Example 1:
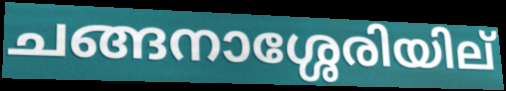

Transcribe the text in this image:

ചങ്ങനാശ്ശേരിയില്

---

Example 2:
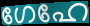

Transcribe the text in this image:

ഗേഹേ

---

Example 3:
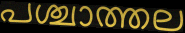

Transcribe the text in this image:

പശ്ചാത്തല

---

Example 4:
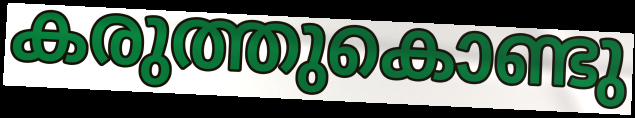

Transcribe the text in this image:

കരുത്തുകൊണ്ടു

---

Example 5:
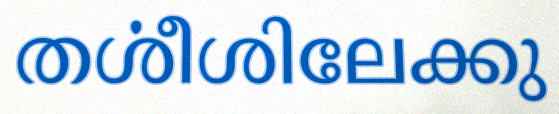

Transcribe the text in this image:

തൎശീശിലേക്കു